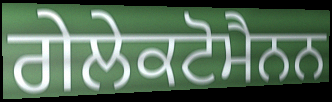
ਗੇਲੇਕਟੋਮੈਨਨ